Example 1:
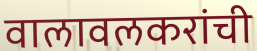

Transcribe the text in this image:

वालावलकरांची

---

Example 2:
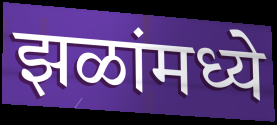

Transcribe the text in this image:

झळांमध्ये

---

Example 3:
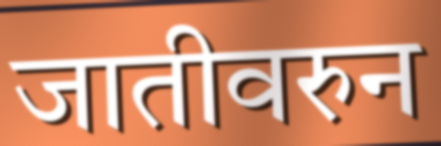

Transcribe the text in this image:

जातीवरुन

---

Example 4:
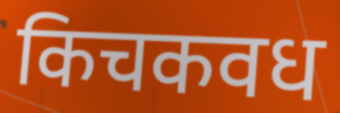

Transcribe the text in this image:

किचकवध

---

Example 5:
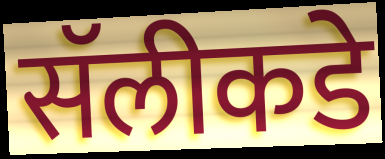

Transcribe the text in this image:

सॅलीकडे